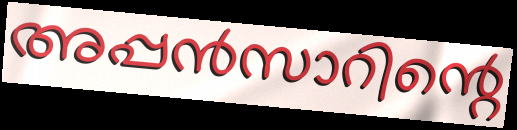
അപ്പൻസാറിന്റെ